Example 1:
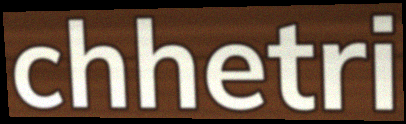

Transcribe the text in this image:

chhetri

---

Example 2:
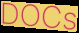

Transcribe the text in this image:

DOCs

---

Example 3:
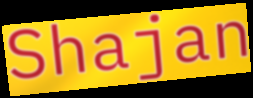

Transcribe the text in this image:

Shajan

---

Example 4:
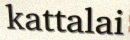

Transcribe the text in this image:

kattalai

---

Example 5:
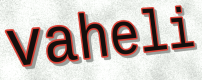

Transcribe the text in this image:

vaheli